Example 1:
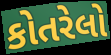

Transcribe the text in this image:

કોતરેલો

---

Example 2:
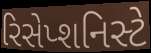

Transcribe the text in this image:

રિસેપ્શનિસ્ટે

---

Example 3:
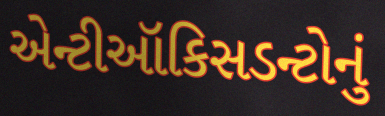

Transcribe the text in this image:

એન્ટીઑકિસડન્ટોનું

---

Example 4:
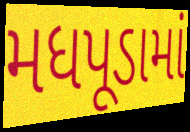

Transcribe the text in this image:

મધપૂડામાં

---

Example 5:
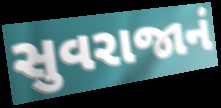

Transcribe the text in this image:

સુવરાજાનં